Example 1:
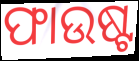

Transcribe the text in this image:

ଫାଉଷ୍ଟ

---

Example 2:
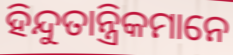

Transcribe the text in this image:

ହିନ୍ଦୁତାନ୍ତ୍ରିକମାନେ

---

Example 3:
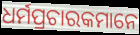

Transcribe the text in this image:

ଧର୍ମପ୍ରଚାରକମାନେ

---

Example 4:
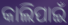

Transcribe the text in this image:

କାଲିପାଇଁ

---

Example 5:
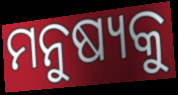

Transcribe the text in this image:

ମନୁଷ୍ୟକୁ